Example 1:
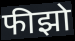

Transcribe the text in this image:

फीझो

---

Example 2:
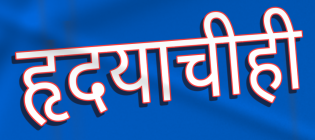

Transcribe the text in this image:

हृदयाचीही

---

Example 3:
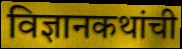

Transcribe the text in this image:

विज्ञानकथांची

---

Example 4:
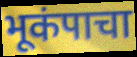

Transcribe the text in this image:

भूकंपाचा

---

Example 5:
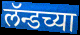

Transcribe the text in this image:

लॅन्डच्या